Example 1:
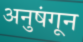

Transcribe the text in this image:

अनुषंगून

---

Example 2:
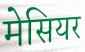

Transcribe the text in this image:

मेसियर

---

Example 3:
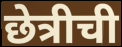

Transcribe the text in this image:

छेत्रीची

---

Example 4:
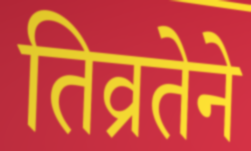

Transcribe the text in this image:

तिव्रतेने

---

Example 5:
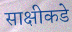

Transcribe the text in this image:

साक्षीकडे